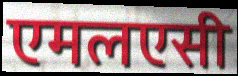
एमलएसी